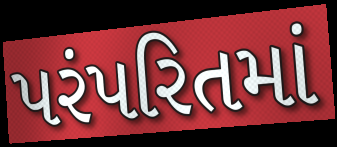
પરંપરિતમાં